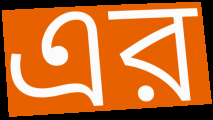
এর